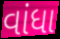
વાંધા